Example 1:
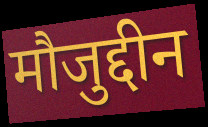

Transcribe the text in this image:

मौजुद्दीन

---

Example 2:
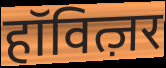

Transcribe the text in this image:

हॉवित्ज़र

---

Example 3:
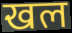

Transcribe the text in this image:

खल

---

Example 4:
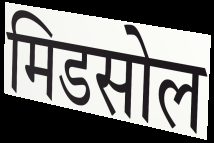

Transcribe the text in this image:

मिडसोल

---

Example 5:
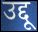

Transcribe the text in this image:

उद्दू